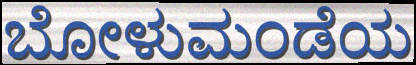
ಬೋಳುಮಂಡೆಯ